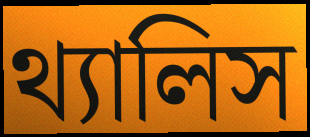
থ্যালিস